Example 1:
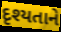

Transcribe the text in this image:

દૃશ્યતાને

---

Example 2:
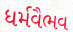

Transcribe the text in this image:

ધર્મવૈભવ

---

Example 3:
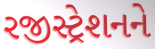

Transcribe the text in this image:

રજીસ્ટ્રેશનને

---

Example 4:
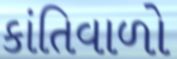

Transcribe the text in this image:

કાંતિવાળો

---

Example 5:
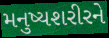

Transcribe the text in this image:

મનુષ્યશરીરને